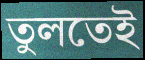
তুলতেই